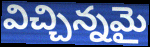
విచ్చిన్నమై